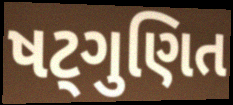
ષટ્ગુણિત